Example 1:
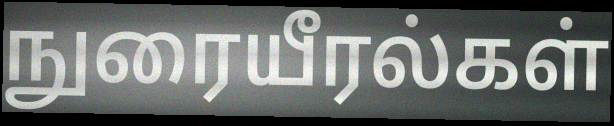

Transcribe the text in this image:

நுரையீரல்கள்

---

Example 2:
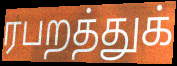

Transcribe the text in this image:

ரபறத்துக்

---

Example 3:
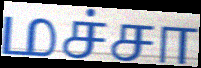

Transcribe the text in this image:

மச்சா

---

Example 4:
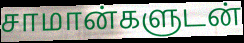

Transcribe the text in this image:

சாமான்களுடன்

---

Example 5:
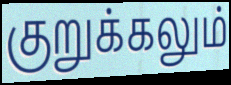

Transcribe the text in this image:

குறுக்கலும்